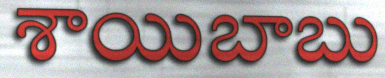
శాయిబాబు